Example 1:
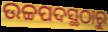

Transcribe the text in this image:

ଉଚ୍ଚପଦସ୍ଥଠାରୁ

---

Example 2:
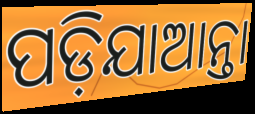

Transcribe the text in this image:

ପଡ଼ିଯାଆନ୍ତା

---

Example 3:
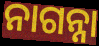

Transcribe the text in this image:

ନାଗନ୍ନା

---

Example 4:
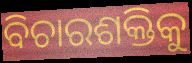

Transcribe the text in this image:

ବିଚାରଶକ୍ତିକୁ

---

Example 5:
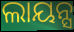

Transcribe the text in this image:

ଲାୟନ୍ସ